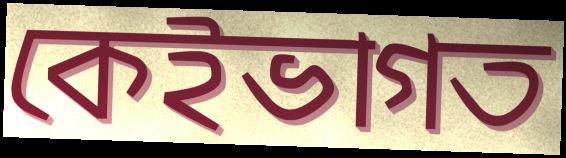
কেইভাগত